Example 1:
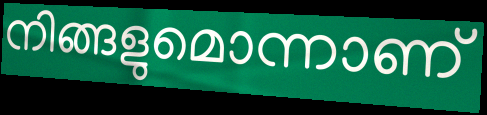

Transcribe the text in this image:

നിങ്ങളുമൊന്നാണ്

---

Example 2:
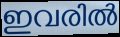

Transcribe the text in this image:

ഇവരിൽ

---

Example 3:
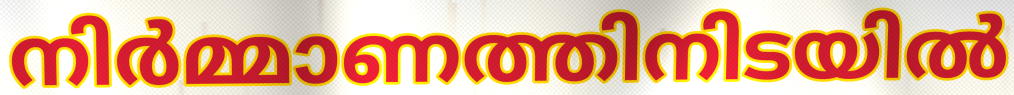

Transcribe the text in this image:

നിർമ്മാണത്തിനിടയിൽ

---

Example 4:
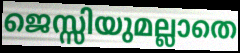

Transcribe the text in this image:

ജെസ്സിയുമല്ലാതെ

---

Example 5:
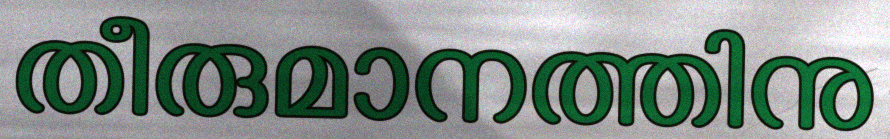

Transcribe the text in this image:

തീരുമാനത്തിനു